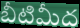
బీటిమీద